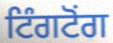
ਟਿੰਗਟੋਂਗ